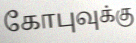
கோபுவுக்கு